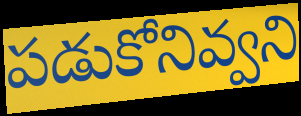
పడుకోనివ్వని